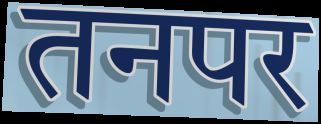
तनपर